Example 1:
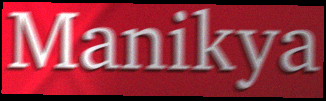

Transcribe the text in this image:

Manikya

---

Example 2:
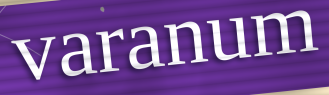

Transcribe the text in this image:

varanum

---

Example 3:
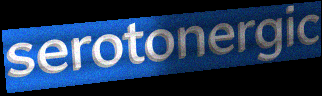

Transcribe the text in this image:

serotonergic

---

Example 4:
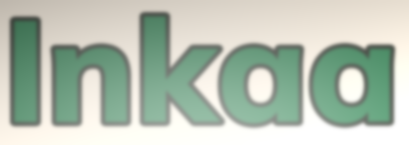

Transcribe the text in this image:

Inkaa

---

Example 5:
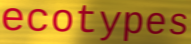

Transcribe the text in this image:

ecotypes